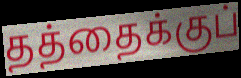
தத்தைக்குப்